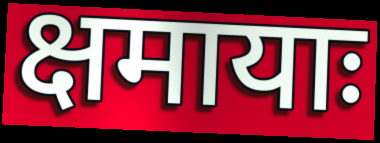
क्षमायाः